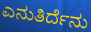
ಎನುತಿರ್ದೆನು